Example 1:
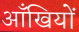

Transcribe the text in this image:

आँखियों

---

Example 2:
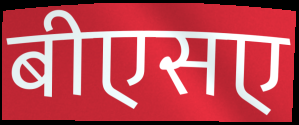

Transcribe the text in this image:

बीएसए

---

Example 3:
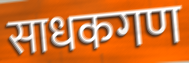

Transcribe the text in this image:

साधकगण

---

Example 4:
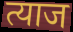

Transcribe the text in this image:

त्याज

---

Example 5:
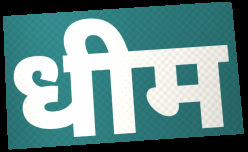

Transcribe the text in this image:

धीम